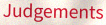
Judgements